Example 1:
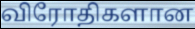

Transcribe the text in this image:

விரோதிகளான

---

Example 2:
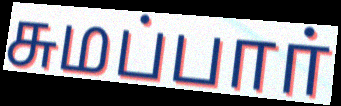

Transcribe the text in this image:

சுமப்பார்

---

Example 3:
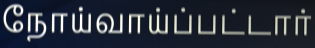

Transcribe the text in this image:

நோய்வாய்ப்பட்டார்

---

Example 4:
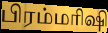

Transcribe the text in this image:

பிரம்மரிஷி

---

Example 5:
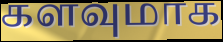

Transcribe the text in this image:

களவுமாக